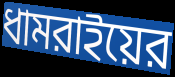
ধামরাইয়ের